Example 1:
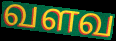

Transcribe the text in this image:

வளவ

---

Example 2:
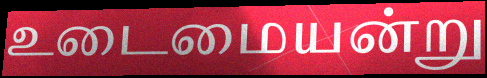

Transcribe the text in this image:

உடைமையன்று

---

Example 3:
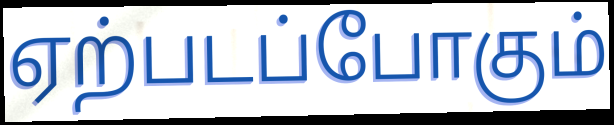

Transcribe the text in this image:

ஏற்படப்போகும்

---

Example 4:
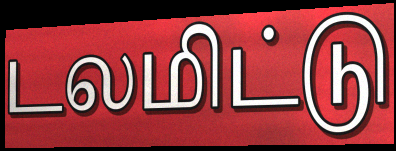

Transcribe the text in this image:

டலமிட்டு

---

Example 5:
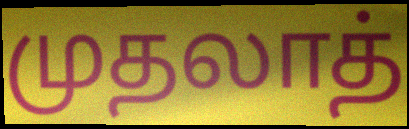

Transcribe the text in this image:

முதலாத்